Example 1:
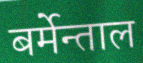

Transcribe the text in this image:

बर्मेन्ताल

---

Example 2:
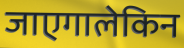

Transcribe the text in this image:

जाएगालेकिन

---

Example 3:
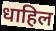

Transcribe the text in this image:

धाहिल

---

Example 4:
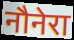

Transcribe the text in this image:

नौनेरा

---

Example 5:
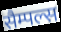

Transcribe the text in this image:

सैम्‍पल्‍स